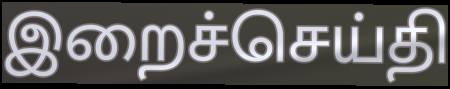
இறைச்செய்தி